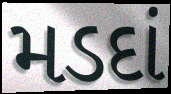
મડદાં